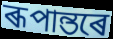
ৰূপান্তৰে